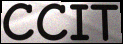
CCIT